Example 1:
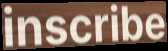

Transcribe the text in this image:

inscribe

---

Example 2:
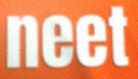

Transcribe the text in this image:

neet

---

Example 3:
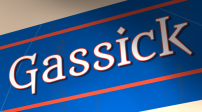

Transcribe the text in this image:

Gassick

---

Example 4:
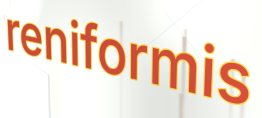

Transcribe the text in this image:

reniformis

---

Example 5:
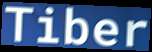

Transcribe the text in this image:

Tiber